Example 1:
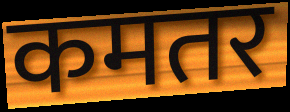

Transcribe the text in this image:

कमतर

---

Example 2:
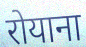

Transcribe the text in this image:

रोयाना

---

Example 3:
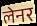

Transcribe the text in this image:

लेनर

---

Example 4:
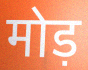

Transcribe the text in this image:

मोड़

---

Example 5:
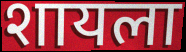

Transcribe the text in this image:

शायला